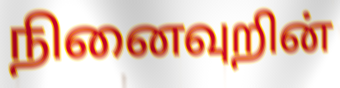
நினைவுறின்